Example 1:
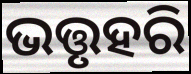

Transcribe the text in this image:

ଭତ୍ତୃହରି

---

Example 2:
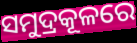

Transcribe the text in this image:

ସମୁଦ୍ରକୂଳରେ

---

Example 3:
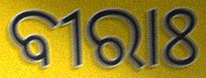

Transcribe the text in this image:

ବୀରାଃ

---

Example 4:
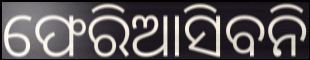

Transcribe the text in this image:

ଫେରିଆସିବନି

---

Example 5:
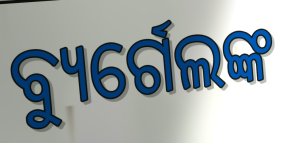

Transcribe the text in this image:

ବ୍ୟୁର୍ଗେଲଙ୍କ